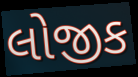
લોજીક